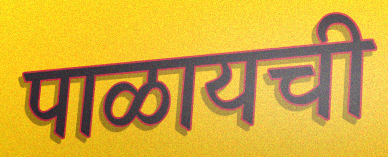
पाळायची